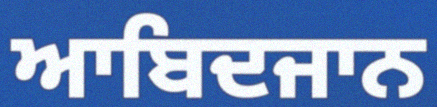
ਆਬਿਦਜਾਨ